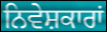
ਨਿਵੇਸ਼ਕਾਰਾਂ